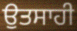
ਉਤਸਾਹੀ